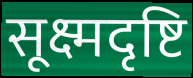
सूक्ष्मदृष्टि